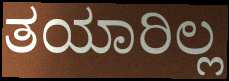
ತಯಾರಿಲ್ಲ